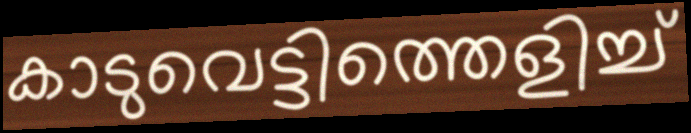
കാടുവെട്ടിത്തെളിച്ച്